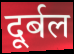
दूर्बल